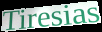
Tiresias